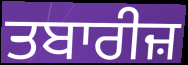
ਤਬਾਰੀਜ਼